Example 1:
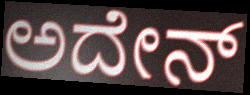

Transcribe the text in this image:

ಅದೇನ್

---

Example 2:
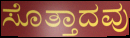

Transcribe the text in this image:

ಸೊತ್ತಾದವು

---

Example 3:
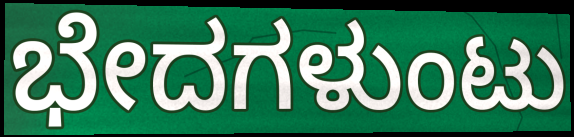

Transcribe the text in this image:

ಭೇದಗಳುಂಟು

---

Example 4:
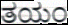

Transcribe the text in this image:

ತಯಂ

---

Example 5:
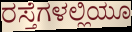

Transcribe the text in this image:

ರಸ್ತೆಗಳಲ್ಲಿಯೂ